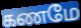
கணமே